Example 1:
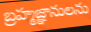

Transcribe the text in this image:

బ్రహ్మజ్ఞానులను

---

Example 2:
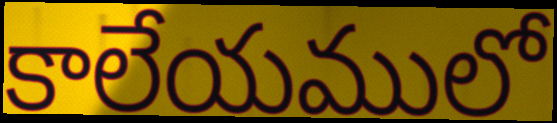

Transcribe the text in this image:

కాలేయములో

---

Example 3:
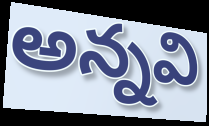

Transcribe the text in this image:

అన్నవి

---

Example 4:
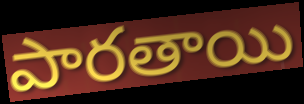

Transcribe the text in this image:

పారతాయి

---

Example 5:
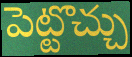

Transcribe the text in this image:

పెట్టొచ్చు